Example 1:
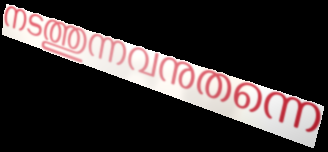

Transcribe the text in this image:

നടത്തുന്നവനുതന്നെ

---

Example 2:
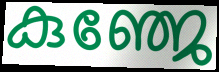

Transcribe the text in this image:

കുഞ്ജേ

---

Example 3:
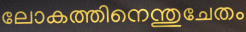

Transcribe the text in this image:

ലോകത്തിനെന്തുചേതം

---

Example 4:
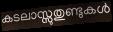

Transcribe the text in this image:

കടലാസ്സുതുണ്ടുകൾ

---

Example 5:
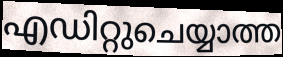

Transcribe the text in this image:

എഡിറ്റുചെയ്യാത്ത